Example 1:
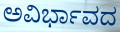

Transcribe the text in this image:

ಅವಿರ್ಭಾವದ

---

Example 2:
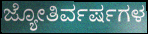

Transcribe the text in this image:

ಜ್ಯೋತಿರ್ವರ್ಷಗಳ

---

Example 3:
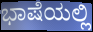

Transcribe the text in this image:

ಭಾಷೆಯಲ್ಲಿ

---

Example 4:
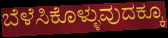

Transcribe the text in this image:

ಬೆಳೆಸಿಕೊಳ್ಳುವುದಕ್ಕೂ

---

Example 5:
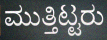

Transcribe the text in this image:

ಮುತ್ತಿಟ್ಟರು